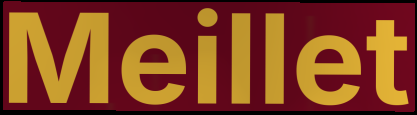
Meillet